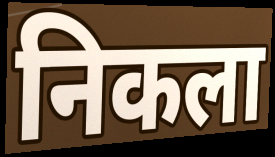
निकला